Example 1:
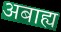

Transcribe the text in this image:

अबाह्य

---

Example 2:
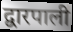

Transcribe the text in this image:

द्वारपाली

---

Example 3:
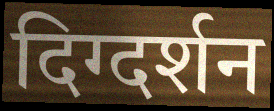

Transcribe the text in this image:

दिग्दर्शन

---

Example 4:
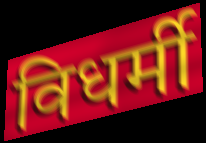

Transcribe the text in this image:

विधर्मी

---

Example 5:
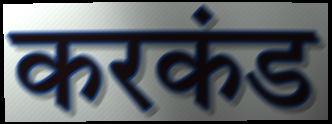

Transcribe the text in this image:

करकंड